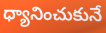
ధ్యానించుకునే